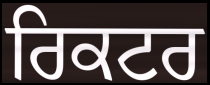
ਰਿਕਟਰ